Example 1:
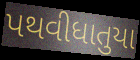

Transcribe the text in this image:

પથવીધાતુયા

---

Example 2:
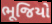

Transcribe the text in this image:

ભૂજિયો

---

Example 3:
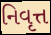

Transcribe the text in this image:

નિવૃત્ત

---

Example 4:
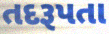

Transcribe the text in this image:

તદરૂપતા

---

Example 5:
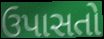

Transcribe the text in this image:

ઉપાસતો